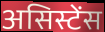
असिस्टेंस